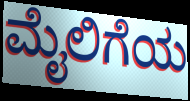
ಮೈಲಿಗೆಯ